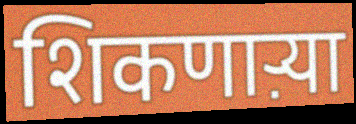
शिकणाऱ्‍या